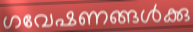
ഗവേഷണങ്ങൾക്കു